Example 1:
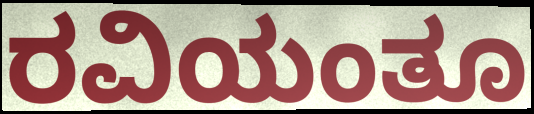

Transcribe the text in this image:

ರವಿಯಂತೂ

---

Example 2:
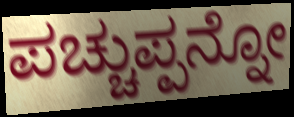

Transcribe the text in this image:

ಪಚ್ಚುಪ್ಪನ್ನೋ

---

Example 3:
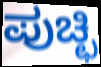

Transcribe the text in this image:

ಪುಚ್ಛಿ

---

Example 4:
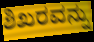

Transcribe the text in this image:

ಶಿಖರವನ್ನು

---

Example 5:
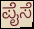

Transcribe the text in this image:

ಪೈಸೆ